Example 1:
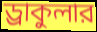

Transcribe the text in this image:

ড্রাকুলার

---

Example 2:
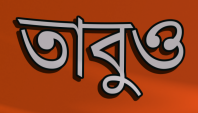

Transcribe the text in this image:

তাবুও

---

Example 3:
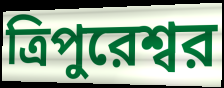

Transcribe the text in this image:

ত্রিপুরেশ্বর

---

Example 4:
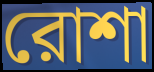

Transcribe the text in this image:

রোশা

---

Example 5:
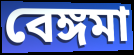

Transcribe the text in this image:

বেঙ্গমা